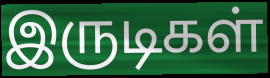
இருடிகள்